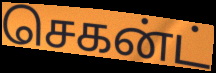
செகன்ட்